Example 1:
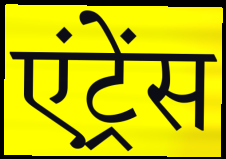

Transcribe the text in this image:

एंट्रेंस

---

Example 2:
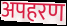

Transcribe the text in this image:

अपहरण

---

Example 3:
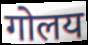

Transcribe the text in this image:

गोलय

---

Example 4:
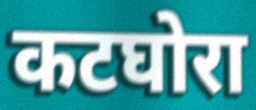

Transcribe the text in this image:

कटघोरा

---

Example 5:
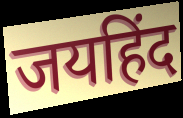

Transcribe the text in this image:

जयहिंद